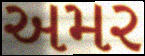
અમર